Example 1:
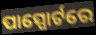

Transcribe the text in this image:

ପାସ୍ପୋର୍ଟରେ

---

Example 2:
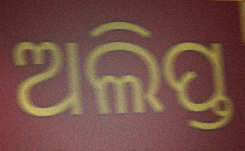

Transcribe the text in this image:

ଅଲିପ୍ତ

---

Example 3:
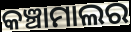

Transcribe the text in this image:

କଞ୍ଚାମାଲର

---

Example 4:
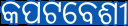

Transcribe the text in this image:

କପଟବେଶୀ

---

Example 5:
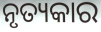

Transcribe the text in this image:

ନୃତ୍ୟକାର